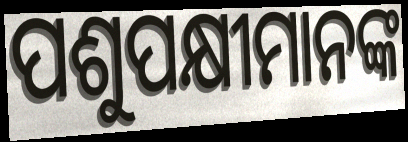
ପଶୁପକ୍ଷୀମାନଙ୍କ